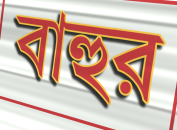
বাহুর